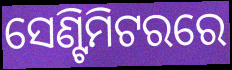
ସେଣ୍ଟିମିଟରରେ